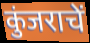
कुंजराचें